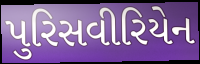
પુરિસવીરિયેન